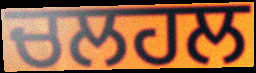
ਚਲਹਲ